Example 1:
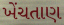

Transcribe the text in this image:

ખેંચતાણ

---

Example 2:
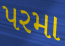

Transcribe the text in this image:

પરમા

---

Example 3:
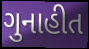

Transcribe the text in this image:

ગુનાહીત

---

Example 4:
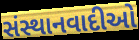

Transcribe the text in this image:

સંસ્થાનવાદીઓ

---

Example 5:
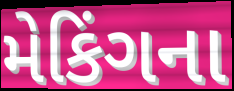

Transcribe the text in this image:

મેકિંગના